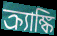
ক্র্যাঙ্কি